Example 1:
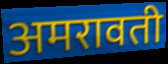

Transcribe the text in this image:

अमरावती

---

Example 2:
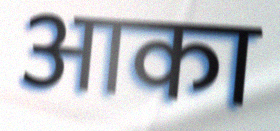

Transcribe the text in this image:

आका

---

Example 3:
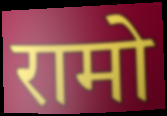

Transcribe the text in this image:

रामो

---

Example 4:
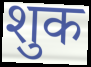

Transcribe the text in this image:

शुक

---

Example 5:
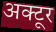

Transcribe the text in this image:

अक्टूर